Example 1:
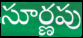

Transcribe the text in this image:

సూర్ణపు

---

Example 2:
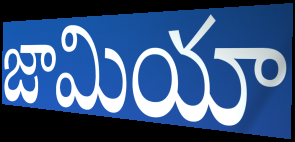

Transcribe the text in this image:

జామియా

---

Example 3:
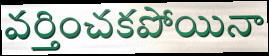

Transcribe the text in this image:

వర్తించకపోయినా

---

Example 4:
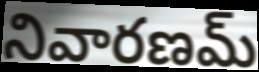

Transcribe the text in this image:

నివారణమ్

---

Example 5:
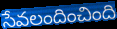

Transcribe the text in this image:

సేవలందించింది